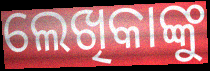
ଲେଖିକାଙ୍କୁ